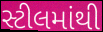
સ્ટીલમાંથી